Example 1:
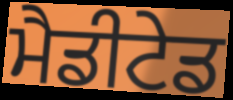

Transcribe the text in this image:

ਮੈਡੀਟੇਡ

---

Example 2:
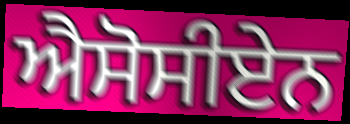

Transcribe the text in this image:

ਐਸੋਸੀਏਨ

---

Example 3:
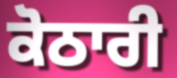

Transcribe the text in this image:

ਕੋਠਾਰੀ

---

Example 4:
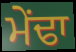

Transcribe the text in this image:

ਮੇਂਢਾ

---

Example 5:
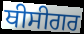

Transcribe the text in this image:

ਥੀਸੀਗਰ